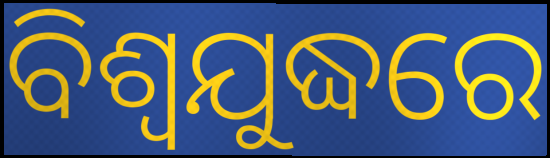
ବିଶ୍ଵଯୁଦ୍ଧରେ